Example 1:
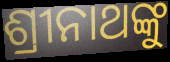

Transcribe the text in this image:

ଶ୍ରୀନାଥଙ୍କୁ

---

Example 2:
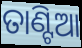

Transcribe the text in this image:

ତାଣ୍ଟିଆ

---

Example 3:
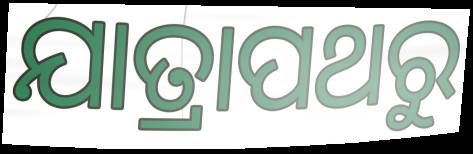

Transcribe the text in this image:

ଯାତ୍ରାପଥରୁ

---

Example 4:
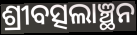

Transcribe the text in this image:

ଶ୍ରୀବତ୍ସଲାଞ୍ଛନ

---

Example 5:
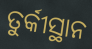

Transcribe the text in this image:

ତୁର୍କୀସ୍ଥାନ